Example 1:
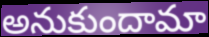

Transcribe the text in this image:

అనుకుందామా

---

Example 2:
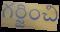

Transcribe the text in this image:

గర్జించి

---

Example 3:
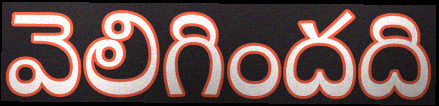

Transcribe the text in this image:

వెలిగిందది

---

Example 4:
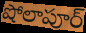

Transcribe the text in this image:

షోలాపూర్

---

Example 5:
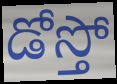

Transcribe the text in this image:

డోస్తో